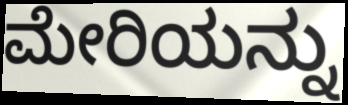
ಮೇರಿಯನ್ನು